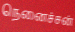
நெனைச்சன்